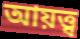
আয়ত্ত্ব